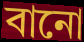
বানো